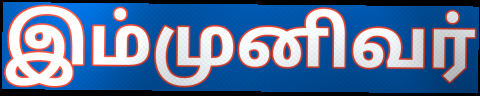
இம்முனிவர்